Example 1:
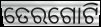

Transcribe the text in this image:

ତେରଗୋଟି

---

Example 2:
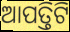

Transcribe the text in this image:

ଆପତ୍ତିଟି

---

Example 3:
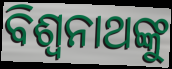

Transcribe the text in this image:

ବିଶ୍ବନାଥଙ୍କୁ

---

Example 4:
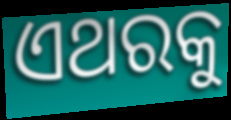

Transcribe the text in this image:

ଏଥରକୁ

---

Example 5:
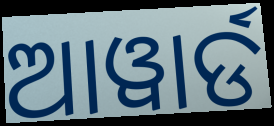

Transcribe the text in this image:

ଆୱାର୍ଡ